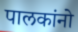
पालकांनो